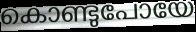
കൊണ്ടുപോയേ